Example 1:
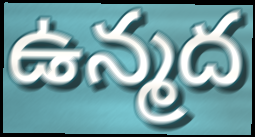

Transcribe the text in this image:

ఉన్మద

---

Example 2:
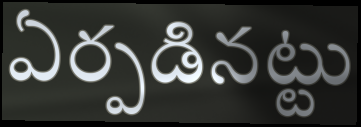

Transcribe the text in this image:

ఏర్పడినట్టు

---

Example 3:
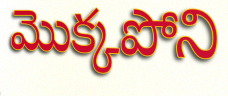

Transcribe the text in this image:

మొక్కపోని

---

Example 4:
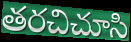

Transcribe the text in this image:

తరచిచూసి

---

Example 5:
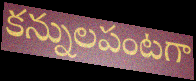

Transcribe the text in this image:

కన్నులపంటగా